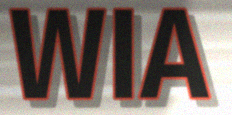
WIA